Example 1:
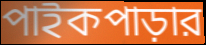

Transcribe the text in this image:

পাইকপাড়ার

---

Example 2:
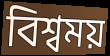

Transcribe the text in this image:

বিশ্বময়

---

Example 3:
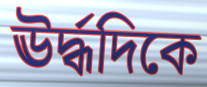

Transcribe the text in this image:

ঊর্দ্ধদিকে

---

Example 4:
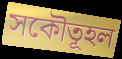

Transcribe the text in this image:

সকৌতূহল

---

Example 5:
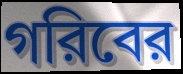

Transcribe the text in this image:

গরিবের